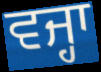
ਵਜ੍ਹਾ